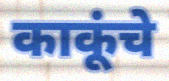
काकूंचे